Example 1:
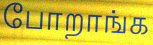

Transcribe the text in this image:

போறாங்க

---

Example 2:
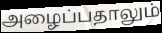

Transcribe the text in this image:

அழைப்பதாலும்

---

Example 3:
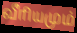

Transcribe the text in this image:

வீரியமும்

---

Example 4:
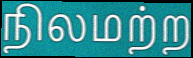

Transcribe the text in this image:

நிலமற்ற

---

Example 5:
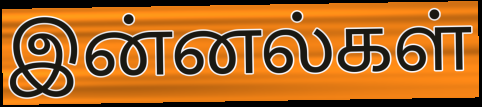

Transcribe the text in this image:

இன்னல்கள்